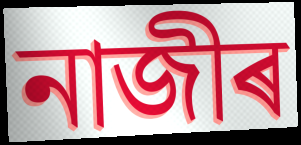
নাজীৰ